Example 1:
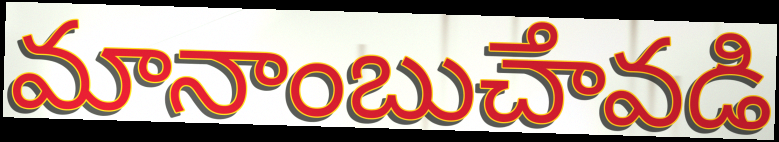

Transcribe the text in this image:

మానాంబుౘావడి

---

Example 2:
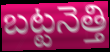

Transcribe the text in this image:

బట్టనెత్తి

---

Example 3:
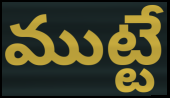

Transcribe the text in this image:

ముట్టే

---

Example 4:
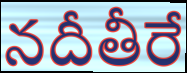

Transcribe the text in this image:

నదీతీరే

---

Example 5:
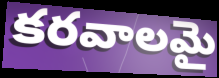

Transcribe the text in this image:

కరవాలమై